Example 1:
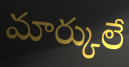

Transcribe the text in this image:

మార్కులే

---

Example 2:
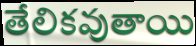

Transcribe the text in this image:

తేలికవుతాయి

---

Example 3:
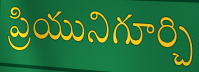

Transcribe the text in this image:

ప్రియునిగూర్చి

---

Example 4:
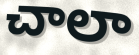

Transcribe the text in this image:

చాలా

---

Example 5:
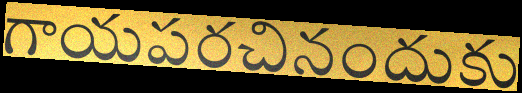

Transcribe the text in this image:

గాయపరచినందుకు